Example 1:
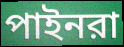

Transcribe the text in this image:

পাইনরা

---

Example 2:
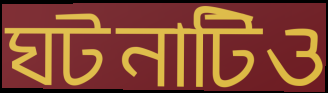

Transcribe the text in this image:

ঘটনাটিও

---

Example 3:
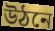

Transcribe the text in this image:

উঠনে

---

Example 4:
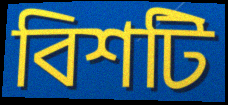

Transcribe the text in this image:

বিশটি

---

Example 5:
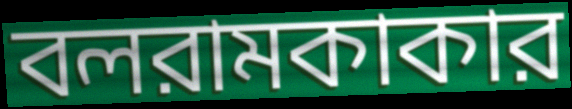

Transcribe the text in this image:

বলরামকাকার